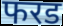
फरड